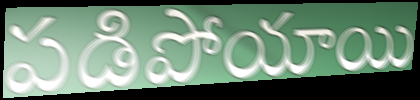
పడిపోయాయి